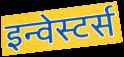
इन्वेस्टर्स